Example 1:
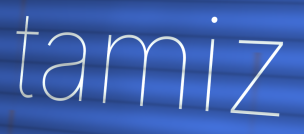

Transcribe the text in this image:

tamiz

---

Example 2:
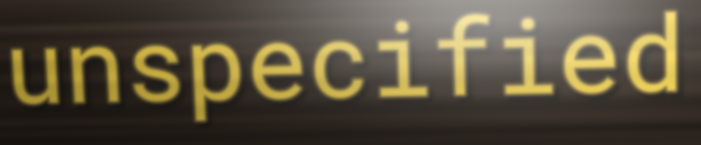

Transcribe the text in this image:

unspecified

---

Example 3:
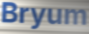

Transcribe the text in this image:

Bryum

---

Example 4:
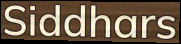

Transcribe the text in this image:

Siddhars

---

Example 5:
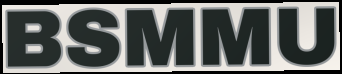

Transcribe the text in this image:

BSMMU